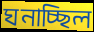
ঘনাচ্ছিল